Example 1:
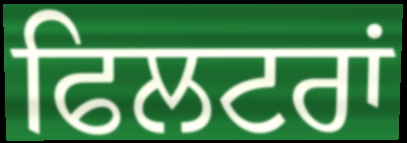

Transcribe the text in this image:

ਫਿਲਟਰਾਂ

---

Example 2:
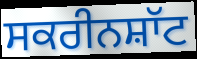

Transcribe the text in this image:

ਸਕਰੀਨਸ਼ਾੱਟ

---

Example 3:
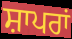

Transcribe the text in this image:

ਸ਼ਾਪਰਾਂ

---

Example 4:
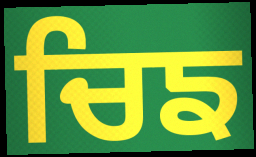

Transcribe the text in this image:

ਚਿਙ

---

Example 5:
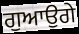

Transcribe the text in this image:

ਗੁਆਉਗੇ